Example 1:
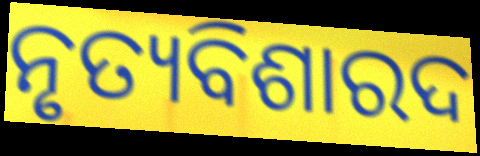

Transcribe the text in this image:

ନୃତ୍ୟବିଶାରଦ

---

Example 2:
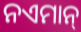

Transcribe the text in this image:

ନଏମାନ୍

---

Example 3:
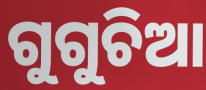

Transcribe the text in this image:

ଗୁଗୁଚିଆ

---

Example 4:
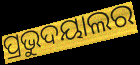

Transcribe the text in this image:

ପ୍ରଭୁଦୟାଲର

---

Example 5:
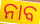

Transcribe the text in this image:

ନାବ